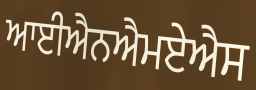
ਆਈਐਨਐਮਏਐਸ